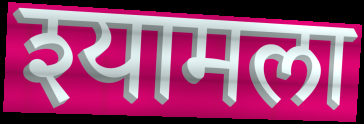
श्यामला